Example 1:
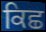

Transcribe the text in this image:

ਕਿਛ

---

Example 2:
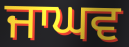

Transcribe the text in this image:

ਜਾਘਵ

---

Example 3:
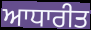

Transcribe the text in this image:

ਆਧਾਰੀਤ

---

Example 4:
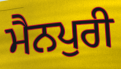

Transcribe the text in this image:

ਮੈਨਪੁਰੀ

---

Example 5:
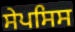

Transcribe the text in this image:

ਸੇਪਸਿਸ